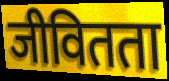
जीवितता